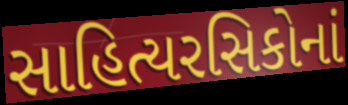
સાહિત્યરસિકોનાં